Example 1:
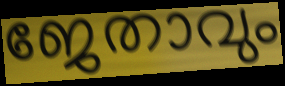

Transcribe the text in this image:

ജേതാവും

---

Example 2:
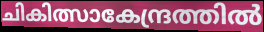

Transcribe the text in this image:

ചികിത്സാകേന്ദ്രത്തിൽ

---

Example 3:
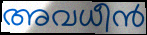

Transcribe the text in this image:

അവധീൻ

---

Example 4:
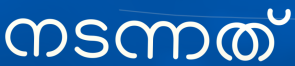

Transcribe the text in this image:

നടന്നത്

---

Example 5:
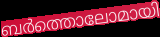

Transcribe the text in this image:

ബർത്തൊലോമായി